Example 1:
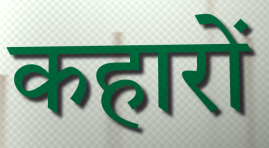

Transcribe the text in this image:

कहारों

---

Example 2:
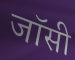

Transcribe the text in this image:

जॉसी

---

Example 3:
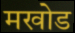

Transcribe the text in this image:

मखोड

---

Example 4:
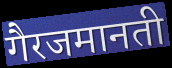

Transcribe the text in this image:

गैरजमानती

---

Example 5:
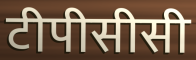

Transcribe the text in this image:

टीपीसीसी